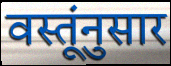
वस्तूंनुसार